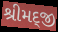
શ્રીમદ્જી